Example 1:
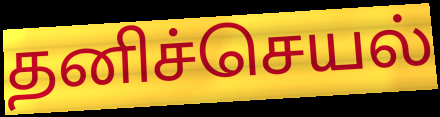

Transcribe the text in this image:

தனிச்செயல்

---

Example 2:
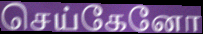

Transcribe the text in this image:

செய்கேனோ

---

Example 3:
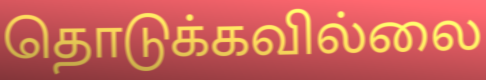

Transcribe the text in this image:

தொடுக்கவில்லை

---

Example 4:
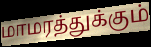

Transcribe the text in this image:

மாமரத்துக்கும்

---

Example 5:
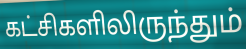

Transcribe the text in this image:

கட்சிகளிலிருந்தும்